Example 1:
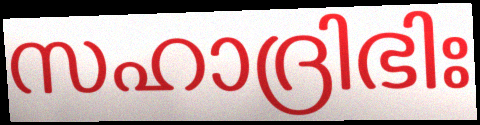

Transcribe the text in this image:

സഹാദ്രിഭിഃ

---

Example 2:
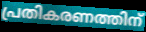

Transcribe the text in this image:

പ്രതികരണത്തിന്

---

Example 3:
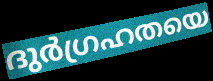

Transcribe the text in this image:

ദുർഗ്രഹതയെ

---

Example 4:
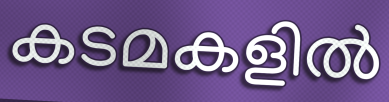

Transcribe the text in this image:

കടമകളിൽ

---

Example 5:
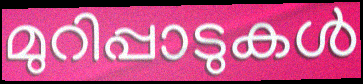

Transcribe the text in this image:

മുറിപ്പാടുകൾ